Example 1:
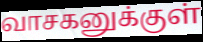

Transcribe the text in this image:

வாசகனுக்குள்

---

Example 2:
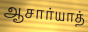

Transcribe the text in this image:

ஆசார்யாத்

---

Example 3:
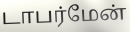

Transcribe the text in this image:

டாபர்மேன்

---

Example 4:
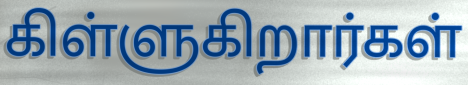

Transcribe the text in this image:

கிள்ளுகிறார்கள்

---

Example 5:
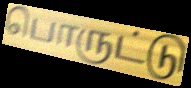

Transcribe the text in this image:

பொருட்டு